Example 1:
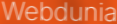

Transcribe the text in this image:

Webdunia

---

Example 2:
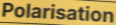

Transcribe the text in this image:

Polarisation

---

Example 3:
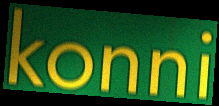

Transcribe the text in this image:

konni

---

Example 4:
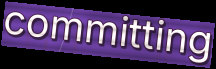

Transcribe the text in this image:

committing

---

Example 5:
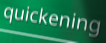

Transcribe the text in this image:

quickening